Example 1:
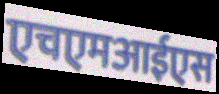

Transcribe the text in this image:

एचएमआईएस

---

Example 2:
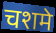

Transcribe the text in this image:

चशमे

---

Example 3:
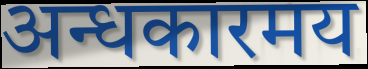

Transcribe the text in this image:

अन्धकारमय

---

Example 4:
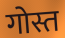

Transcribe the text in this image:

गोस्त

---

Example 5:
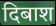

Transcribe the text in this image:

दिबाश